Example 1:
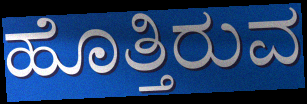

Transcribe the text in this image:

ಹೊತ್ತಿರುವ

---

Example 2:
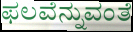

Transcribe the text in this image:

ಫಲವೆನ್ನುವಂತೆ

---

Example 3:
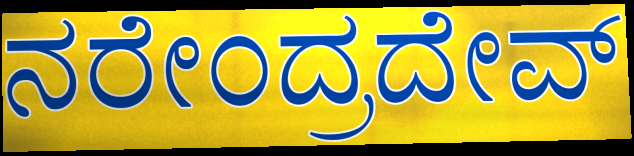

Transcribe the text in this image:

ನರೇಂದ್ರದೇವ್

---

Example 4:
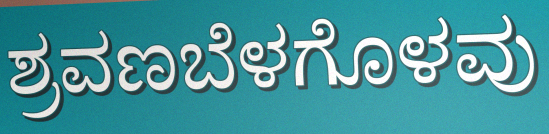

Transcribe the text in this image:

ಶ್ರವಣಬೆಳಗೊಳವು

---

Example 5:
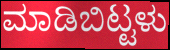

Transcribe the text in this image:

ಮಾಡಿಬಿಟ್ಟಳು